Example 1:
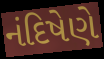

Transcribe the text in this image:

નંદિષેણે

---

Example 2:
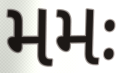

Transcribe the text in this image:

મમઃ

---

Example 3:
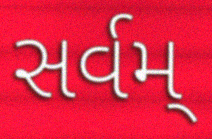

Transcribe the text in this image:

સર્વમ્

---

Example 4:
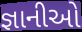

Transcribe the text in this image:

જ્ઞાનીઓ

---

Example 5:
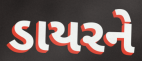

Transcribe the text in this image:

ડાયરને